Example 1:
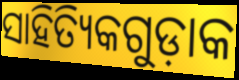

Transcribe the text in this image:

ସାହିତ୍ୟିକଗୁଡ଼ାକ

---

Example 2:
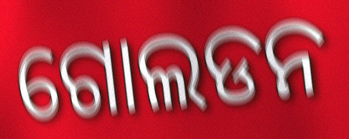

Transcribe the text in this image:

ଗୋଲଡନ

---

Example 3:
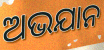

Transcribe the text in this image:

ଅଭଯାନ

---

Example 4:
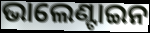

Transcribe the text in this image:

ଭାଲେଣ୍ଟାଇନ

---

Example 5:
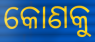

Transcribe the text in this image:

କୋଣକୁ